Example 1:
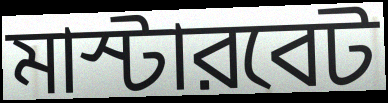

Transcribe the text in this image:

মাস্টারবেট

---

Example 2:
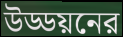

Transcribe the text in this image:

উড্ডয়নের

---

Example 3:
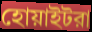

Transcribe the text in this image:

হোয়াইটরা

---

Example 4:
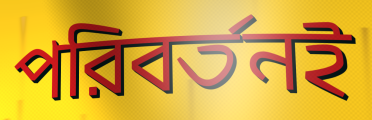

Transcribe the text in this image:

পরিবর্তনই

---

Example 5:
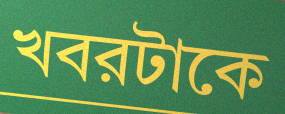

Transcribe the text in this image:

খবরটাকে